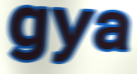
gya